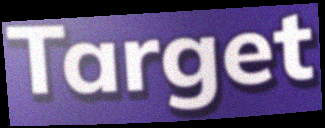
Target